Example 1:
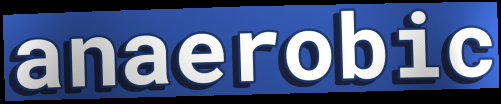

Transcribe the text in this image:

anaerobic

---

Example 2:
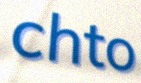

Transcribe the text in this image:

chto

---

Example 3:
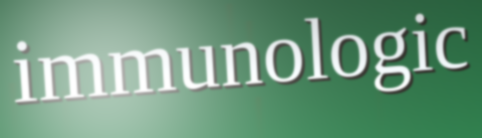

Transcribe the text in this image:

immunologic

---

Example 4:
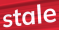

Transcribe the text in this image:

stale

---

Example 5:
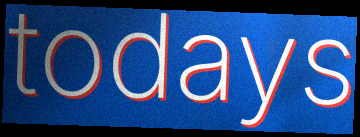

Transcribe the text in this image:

todays